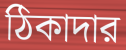
ঠিকাদার